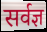
सर्वज्ञ